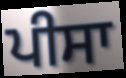
ਪੀਸਾ